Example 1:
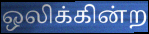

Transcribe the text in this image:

ஒலிக்கின்ற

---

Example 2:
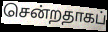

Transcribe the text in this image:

சென்றதாகப்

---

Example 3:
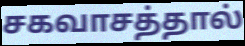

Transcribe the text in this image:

சகவாசத்தால்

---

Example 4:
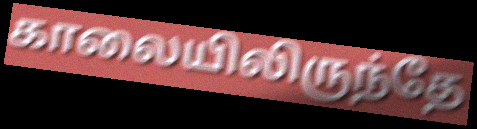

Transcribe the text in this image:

காலையிலிருந்தே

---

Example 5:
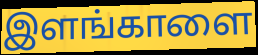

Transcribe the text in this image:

இளங்காளை